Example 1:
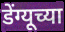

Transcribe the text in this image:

डेंग्यूच्या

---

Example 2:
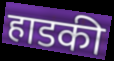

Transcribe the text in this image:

हाडकी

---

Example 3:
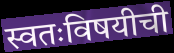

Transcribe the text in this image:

स्वतःविषयीची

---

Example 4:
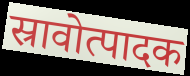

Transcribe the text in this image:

स्रावोत्पादक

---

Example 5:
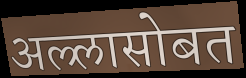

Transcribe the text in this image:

अल्लासोबत